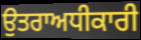
ਉਤਰਾਅਧੀਕਾਰੀ